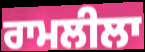
ਰਾਮਲੀਲਾ